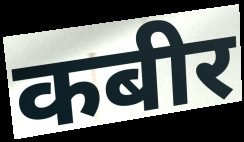
कबीर